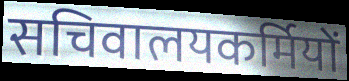
सचिवालयकर्मियों